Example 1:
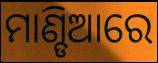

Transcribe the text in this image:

ମାଣ୍ଡିଆରେ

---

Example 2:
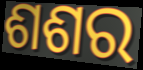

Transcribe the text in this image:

ଶଶର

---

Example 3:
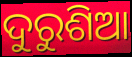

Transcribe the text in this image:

ଦୁରୁଶିଆ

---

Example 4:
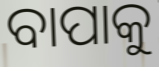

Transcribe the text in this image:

ବାପାକୁ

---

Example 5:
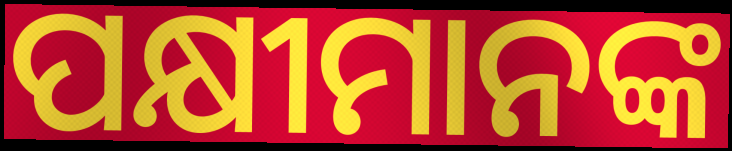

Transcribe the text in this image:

ପକ୍ଷୀମାନଙ୍କ